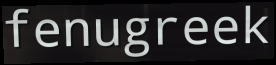
fenugreek